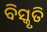
ବିସ୍କୃତି